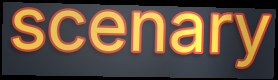
scenary